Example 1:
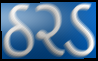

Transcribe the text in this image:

ઠરડ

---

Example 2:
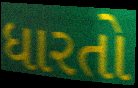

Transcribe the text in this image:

ધારતો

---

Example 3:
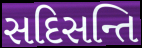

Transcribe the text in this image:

સદિસન્તિ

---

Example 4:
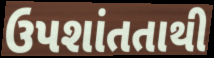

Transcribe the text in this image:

ઉપશાંતતાથી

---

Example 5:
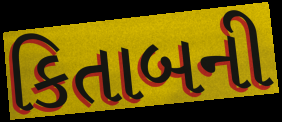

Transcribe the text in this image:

કિતાબની